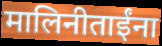
मालिनीताईंना